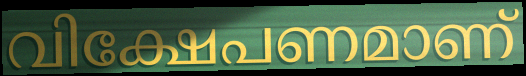
വിക്ഷേപണമാണ്